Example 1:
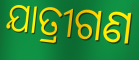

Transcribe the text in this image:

ଯାତ୍ରୀଗଣ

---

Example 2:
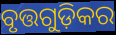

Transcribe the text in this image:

ବୃତ୍ତଗୁଡ଼ିକର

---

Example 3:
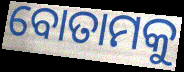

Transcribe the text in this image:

ବୋତାମକୁ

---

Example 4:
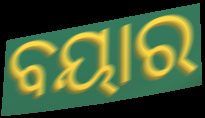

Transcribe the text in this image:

ବୟାର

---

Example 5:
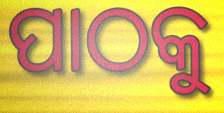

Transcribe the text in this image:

ପାଠକୁ